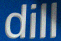
dill